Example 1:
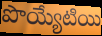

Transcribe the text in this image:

పొయ్యేటియి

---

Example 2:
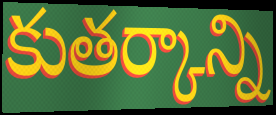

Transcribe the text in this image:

కుతర్కాన్ని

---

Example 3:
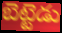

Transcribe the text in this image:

బెట్టెడు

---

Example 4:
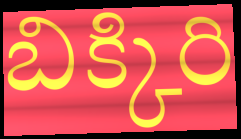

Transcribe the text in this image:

బిక్కిరి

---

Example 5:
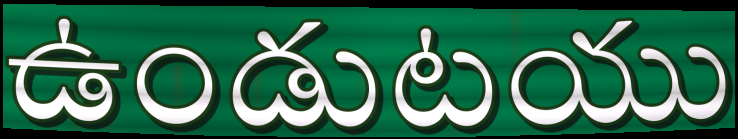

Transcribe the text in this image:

ఉండుటయు